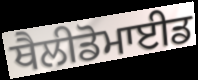
ਥੈਲੀਡੋਮਾਈਡ